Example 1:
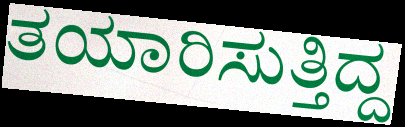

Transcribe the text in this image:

ತಯಾರಿಸುತ್ತಿದ್ದ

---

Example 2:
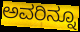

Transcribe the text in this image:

ಅವರಿನ್ನೂ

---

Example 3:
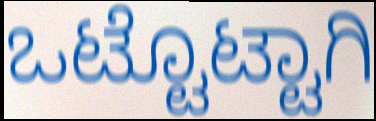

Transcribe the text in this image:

ಒಟ್ಟೊಟ್ಟಾಗಿ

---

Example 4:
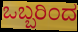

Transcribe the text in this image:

ಒಬ್ಬರಿಂದ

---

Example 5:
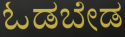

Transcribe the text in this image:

ಓಡಬೇಡ